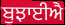
ਬੁਝਾਈਐ